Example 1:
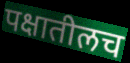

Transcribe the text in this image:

पक्षातीलच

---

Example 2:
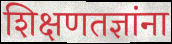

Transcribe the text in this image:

शिक्षणतज्ञांना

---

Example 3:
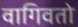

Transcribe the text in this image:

वागिवतो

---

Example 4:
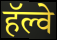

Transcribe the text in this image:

हॅल्वे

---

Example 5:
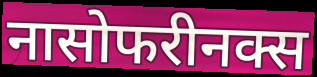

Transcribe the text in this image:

नासोफरीनक्स